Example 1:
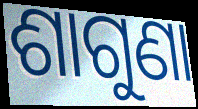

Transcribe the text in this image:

ଶାଗୁଣା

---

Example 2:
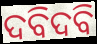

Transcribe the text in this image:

ଦବିଦବି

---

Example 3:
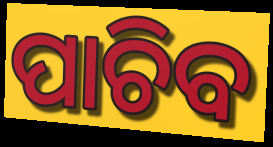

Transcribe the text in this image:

ପାଚିବ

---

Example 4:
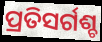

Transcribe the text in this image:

ପ୍ରତିସର୍ଗଶ୍ଚ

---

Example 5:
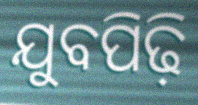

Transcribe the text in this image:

ଯୁବପିଢ଼ି